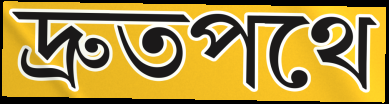
দ্রুতপথে